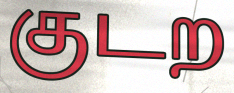
குடற